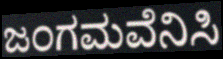
ಜಂಗಮವೆನಿಸಿ